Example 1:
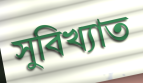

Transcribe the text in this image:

সুবিখ্যাত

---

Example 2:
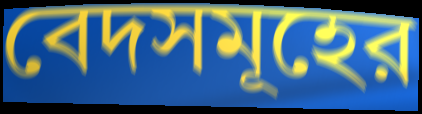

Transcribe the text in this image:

বেদসমূহের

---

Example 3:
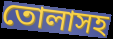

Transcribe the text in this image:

তোলাসহ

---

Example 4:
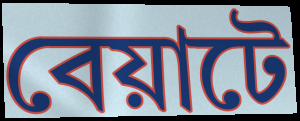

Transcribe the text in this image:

বেয়াটে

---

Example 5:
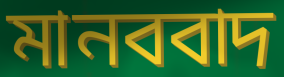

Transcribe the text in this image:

মানববাদ